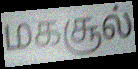
மகசூல்